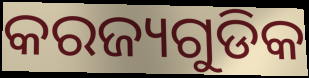
କରଜ୍ୟଗୁଡିକ